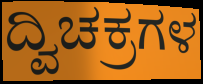
ದ್ವಿಚಕ್ರಗಳ